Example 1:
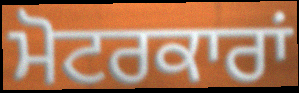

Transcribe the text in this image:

ਮੋਟਰਕਾਰਾਂ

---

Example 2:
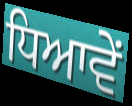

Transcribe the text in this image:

ਧਿਆਵੇਂ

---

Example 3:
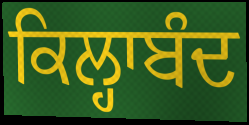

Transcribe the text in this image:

ਕਿਲ੍ਹਾਬੰਦ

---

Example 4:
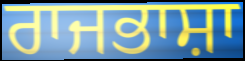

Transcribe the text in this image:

ਰਾਜਭਾਸ਼ਾ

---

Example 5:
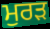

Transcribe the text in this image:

ਮੁਰੜ